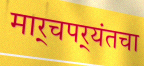
मार्चपर्यंतचा